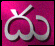
దు